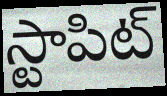
స్టాపిట్